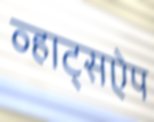
व्‍हाट्सऐप